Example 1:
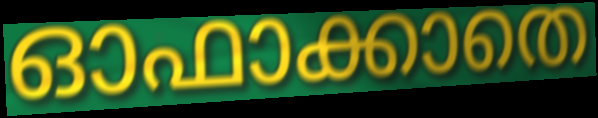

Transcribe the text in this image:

ഓഫാക്കാതെ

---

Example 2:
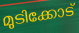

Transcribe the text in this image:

മുടിക്കോട്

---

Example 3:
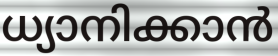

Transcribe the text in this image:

ധ്യാനിക്കാൻ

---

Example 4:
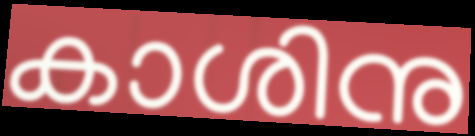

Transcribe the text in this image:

കാശിനു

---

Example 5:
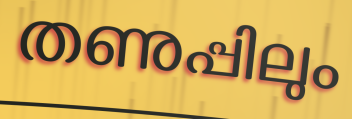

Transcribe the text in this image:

തണുപ്പിലും